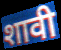
शावी